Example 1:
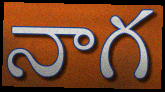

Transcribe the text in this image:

నాగ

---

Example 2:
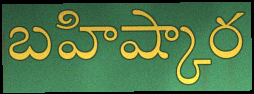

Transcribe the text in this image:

బహిష్కార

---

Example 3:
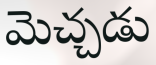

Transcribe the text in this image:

మెచ్చడు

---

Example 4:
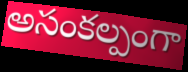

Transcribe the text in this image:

అసంకల్పంగా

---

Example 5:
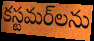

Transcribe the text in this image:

కస్టమర్‌లను